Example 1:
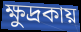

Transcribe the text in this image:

ক্ষুদ্রকায়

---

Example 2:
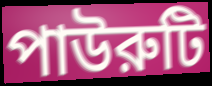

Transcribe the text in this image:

পাউরুটি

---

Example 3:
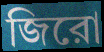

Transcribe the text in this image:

জিরো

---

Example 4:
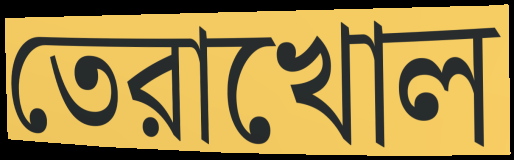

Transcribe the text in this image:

তেরাখোল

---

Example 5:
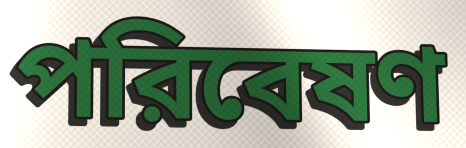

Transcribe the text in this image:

পরিবেষণ